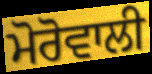
ਮੋਰੋਵਾਲੀ